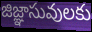
జిజ్ఞాసువులకు